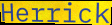
Herrick